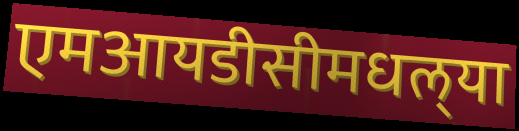
एमआयडीसीमधल्या